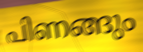
പിണങ്ങും